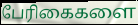
பேரிகைகளை